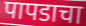
पापडाचा